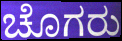
ಚೊಗರು